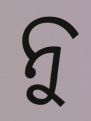
ନୁ